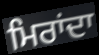
ਮਿਰਾਂਦਾ